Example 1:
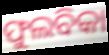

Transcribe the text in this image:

ଫୁଲବିକା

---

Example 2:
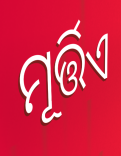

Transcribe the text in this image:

ମୂର୍ତ୍ତିଏ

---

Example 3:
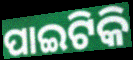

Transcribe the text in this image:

ପାଇଟିକି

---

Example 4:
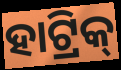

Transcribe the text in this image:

ହାଟ୍ରିକ୍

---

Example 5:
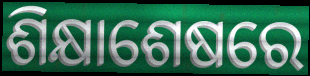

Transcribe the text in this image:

ଶିକ୍ଷାଶେଷରେ